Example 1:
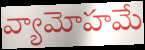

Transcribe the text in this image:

వ్యామోహమే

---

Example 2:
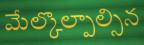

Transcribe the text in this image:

మేల్కొల్పాల్సిన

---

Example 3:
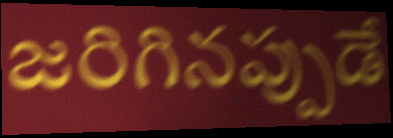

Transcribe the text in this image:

జరిగినప్పుడే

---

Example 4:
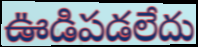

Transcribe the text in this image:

ఊడిపడలేదు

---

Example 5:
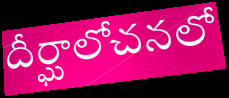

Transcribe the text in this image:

దీర్ఘాలోచనలో